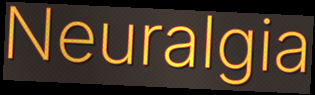
Neuralgia